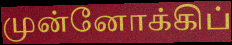
முன்னோக்கிப்